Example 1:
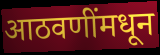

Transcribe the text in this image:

आठवणींमधून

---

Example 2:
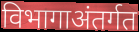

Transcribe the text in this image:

विभागाअंतर्गत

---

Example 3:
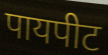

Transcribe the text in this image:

पायपीट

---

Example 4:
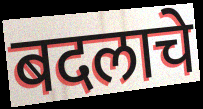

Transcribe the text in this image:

बदलाचे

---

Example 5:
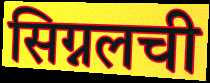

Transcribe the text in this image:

सिग्नलची